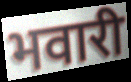
भवारी